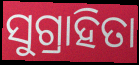
ସୁଗ୍ରାହିତା